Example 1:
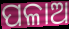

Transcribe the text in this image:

ପଳାଅ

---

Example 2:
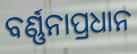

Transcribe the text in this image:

ବର୍ଣ୍ଣନାପ୍ରଧାନ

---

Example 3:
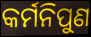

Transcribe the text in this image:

କର୍ମନିପୁଣ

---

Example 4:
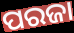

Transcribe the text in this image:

ପରଜା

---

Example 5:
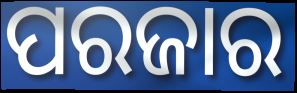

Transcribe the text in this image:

ପରଜାର